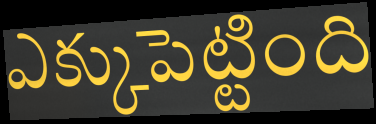
ఎక్కుపెట్టింది